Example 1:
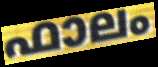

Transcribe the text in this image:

ഫാലം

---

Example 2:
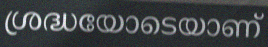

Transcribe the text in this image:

ശ്രദ്ധയോടെയാണ്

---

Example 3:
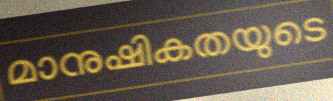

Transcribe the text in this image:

മാനുഷികതയുടെ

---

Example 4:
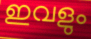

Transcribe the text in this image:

ഇവളും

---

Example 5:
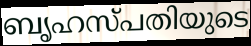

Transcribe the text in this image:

ബൃഹസ്പതിയുടെ